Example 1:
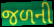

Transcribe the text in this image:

જળની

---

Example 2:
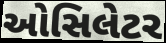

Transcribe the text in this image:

ઓસિલેટર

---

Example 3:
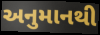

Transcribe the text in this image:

અનુમાનથી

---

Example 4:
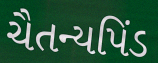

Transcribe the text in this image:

ચૈતન્યપિંડ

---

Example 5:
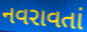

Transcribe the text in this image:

નવરાવતાં